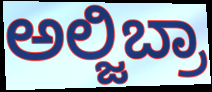
ಅಲ್ಜಿಬ್ರಾ